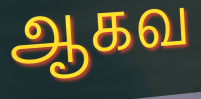
ஆகவ